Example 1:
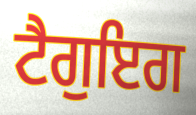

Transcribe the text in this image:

ਟੈਗੁਇਗ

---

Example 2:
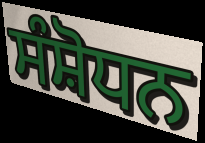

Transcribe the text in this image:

ਸੰਸ਼ੋਧਨ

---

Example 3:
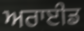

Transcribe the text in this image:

ਅਰਾਈਡ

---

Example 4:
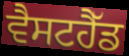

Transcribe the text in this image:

ਵੈਸਟਹੈੱਡ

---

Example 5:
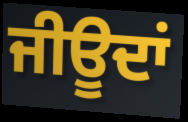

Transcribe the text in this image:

ਜੀਊਦਾਂ